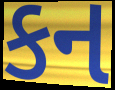
કન